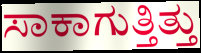
ಸಾಕಾಗುತ್ತಿತ್ತು